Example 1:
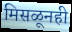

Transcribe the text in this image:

मिसळूनही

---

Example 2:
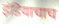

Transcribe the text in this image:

इंडियाचाच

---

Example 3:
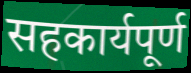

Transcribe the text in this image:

सहकार्यपूर्ण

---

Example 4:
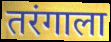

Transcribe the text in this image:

तरंगाला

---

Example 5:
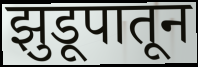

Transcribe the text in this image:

झुडूपातून